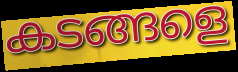
കടങ്ങളെ